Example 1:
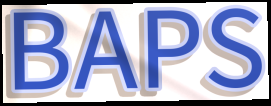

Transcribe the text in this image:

BAPS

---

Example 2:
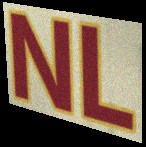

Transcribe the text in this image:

NL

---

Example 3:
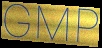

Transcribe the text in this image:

GMP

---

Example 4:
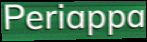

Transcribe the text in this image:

Periappa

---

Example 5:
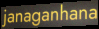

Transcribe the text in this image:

janaganhana